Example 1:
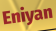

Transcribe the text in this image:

Eniyan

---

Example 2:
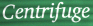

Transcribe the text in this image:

Centrifuge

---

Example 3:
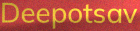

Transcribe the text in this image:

Deepotsav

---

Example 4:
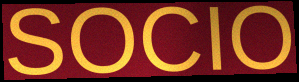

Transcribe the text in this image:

SOCIO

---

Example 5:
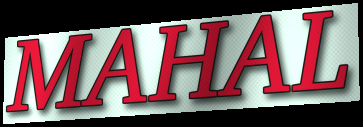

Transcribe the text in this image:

MAHAL